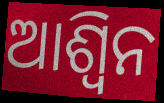
ଆଶ୍ୱିନ